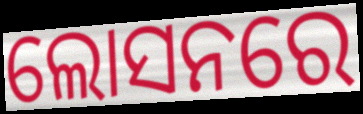
ଲୋସନରେ